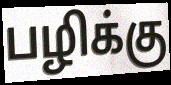
பழிக்கு